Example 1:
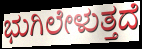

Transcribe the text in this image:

ಭುಗಿಲೇಳುತ್ತದೆ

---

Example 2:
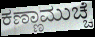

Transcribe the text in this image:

ಕಣ್ಣಾಮುಚ್ಚೆ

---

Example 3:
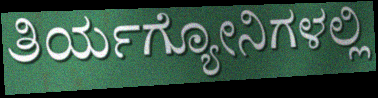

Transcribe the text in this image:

ತಿರ್ಯಗ್ಯೋನಿಗಳಲ್ಲಿ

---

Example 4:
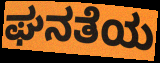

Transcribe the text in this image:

ಘನತೆಯ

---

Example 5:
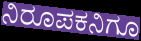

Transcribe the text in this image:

ನಿರೂಪಕನಿಗೂ